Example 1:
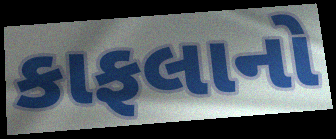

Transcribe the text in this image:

કાફલાનો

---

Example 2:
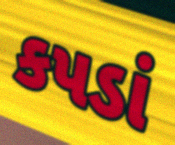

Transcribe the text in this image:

કપડાં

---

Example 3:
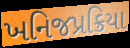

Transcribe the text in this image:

ખનિજપ્રક્રિયા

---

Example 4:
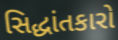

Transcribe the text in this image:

સિદ્ધાંતકારો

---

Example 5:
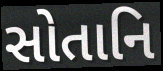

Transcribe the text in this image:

સોતાનિ